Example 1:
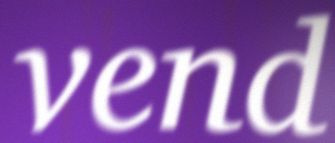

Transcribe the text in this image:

vend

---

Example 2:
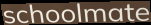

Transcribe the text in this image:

schoolmate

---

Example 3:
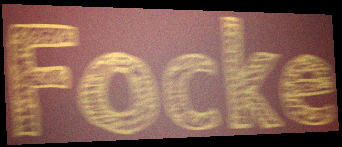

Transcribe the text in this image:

Focke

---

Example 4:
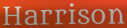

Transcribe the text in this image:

Harrison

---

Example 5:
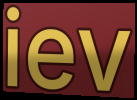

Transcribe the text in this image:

iev